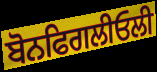
ਬੋਨਫਿਗਲੀਓਲੀ